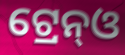
ଟ୍ରେନ୍ଓ